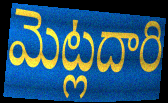
మెట్లదారి